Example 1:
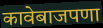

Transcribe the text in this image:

कावेबाजपणा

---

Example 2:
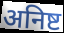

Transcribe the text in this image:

अनिष्ट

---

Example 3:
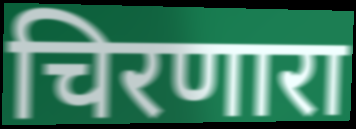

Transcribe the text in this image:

चिरणारा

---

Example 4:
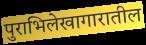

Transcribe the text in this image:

पुराभिलेखागारातील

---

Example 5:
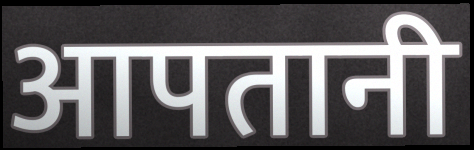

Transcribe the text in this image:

आपतानी